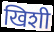
खिशी